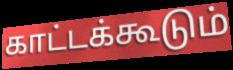
காட்டக்கூடும்